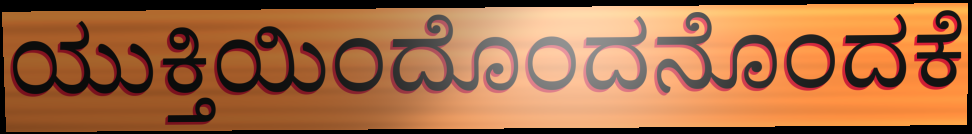
ಯುಕ್ತಿಯಿಂದೊಂದನೊಂದಕೆ